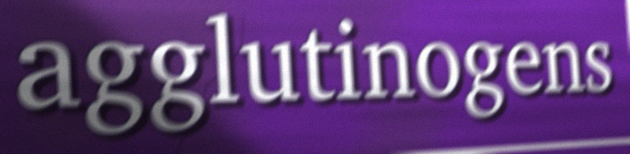
agglutinogens